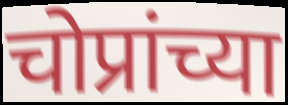
चोप्रांच्या